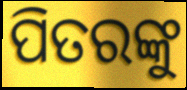
ପିତରଙ୍କୁ